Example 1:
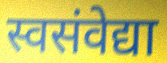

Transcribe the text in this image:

स्वसंवेद्या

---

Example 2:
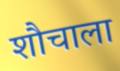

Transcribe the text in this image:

शौचाला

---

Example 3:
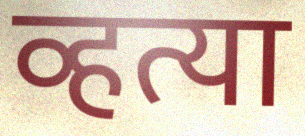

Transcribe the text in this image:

व्हत्या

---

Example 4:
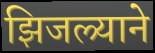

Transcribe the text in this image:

झिजल्याने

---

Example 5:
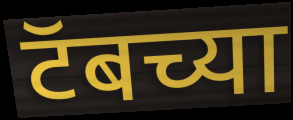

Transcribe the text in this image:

टॅबच्या